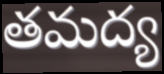
తమద్య